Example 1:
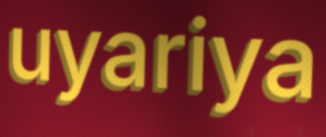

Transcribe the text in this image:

uyariya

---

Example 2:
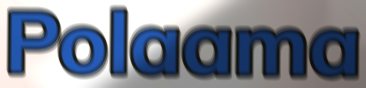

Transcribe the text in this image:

Polaama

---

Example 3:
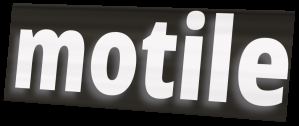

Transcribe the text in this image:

motile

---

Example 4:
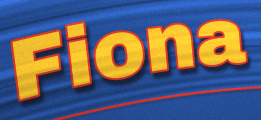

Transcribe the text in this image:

Fiona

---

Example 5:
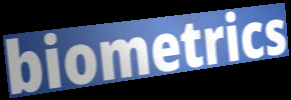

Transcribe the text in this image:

biometrics